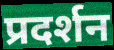
प्रदर्शन